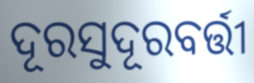
ଦୂରସୁଦୂରବର୍ତ୍ତୀ